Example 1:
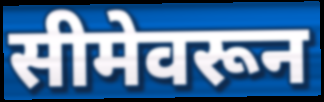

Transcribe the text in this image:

सीमेवरून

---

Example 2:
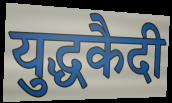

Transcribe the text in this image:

युद्धकैदी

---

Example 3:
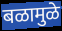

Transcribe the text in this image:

बळामुळे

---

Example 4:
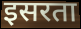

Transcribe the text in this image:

इसरता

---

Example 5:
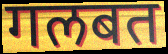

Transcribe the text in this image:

गलबत